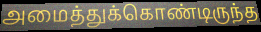
அமைத்துக்கொண்டிருந்த